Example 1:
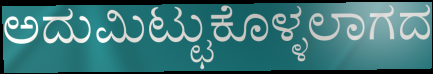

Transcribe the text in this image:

ಅದುಮಿಟ್ಟುಕೊಳ್ಳಲಾಗದ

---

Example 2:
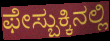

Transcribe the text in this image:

ಫೇಸ್ಬುಕ್ಕಿನಲ್ಲಿ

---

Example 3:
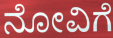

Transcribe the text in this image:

ನೋವಿಗೆ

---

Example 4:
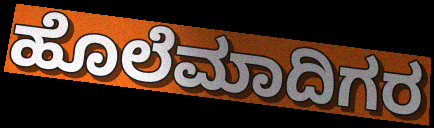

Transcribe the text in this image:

ಹೊಲೆಮಾದಿಗರ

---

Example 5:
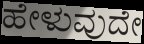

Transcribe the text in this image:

ಹೇಳುವುದೇ